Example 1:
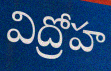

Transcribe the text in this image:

విద్రోహ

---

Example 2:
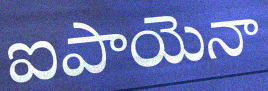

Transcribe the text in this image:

ఐపాయెనా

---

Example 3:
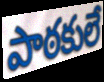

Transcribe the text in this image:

పాఠకులే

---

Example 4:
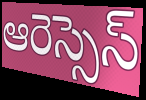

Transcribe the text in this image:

ఆరెస్సెస్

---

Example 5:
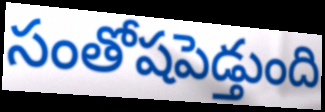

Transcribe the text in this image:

సంతోషపెడ్తుంది